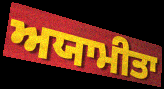
ਅਯਾਮੀਤਾ